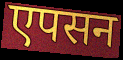
एपसन